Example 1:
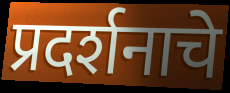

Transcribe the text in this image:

प्रदर्शनाचे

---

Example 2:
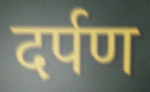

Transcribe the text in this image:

दर्पण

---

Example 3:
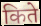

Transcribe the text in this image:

किते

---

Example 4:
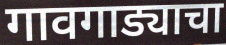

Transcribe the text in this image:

गावगाड्याचा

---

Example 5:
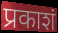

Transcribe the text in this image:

प्रकाशं